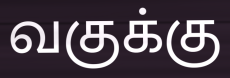
வகுக்கு